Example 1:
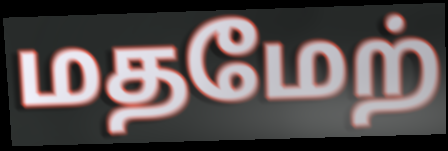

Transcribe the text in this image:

மதமேற்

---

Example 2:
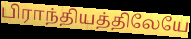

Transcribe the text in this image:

பிராந்தியத்திலேயே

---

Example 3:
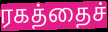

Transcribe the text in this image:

ரகத்தைச்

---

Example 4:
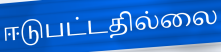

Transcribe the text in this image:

ஈடுபட்டதில்லை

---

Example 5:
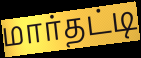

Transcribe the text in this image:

மார்தட்டி